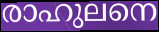
രാഹുലനെ